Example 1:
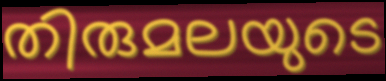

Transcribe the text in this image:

തിരുമലയുടെ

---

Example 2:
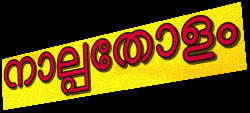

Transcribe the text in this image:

നാല്പതോളം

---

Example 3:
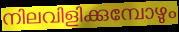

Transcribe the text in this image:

നിലവിളിക്കുമ്പോഴും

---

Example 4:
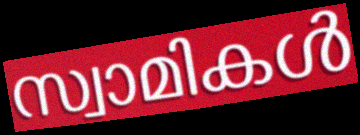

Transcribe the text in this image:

സ്വാമികൾ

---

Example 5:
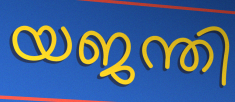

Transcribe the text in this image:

യജന്തി